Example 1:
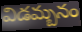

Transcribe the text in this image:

విడమ్బనం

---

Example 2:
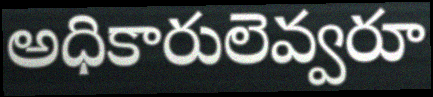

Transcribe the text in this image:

అధికారులెవ్వరూ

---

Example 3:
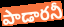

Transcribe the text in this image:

పాడారనీ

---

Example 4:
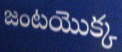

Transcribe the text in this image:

జంటయొక్క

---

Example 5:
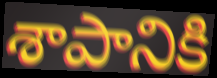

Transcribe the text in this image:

శాపానికి